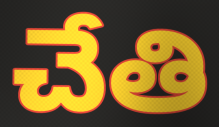
చేతి